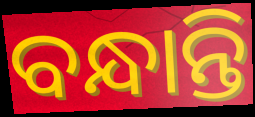
ବନ୍ଧାନ୍ତି